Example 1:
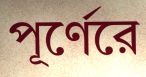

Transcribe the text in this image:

পূর্ণেরে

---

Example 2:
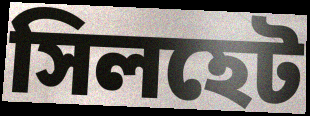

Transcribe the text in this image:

সিলহেট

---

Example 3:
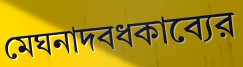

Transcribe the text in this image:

মেঘনাদবধকাব্যের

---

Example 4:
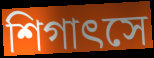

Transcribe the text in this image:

শিগাৎসে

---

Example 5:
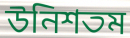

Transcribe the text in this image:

উনিশতম